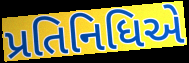
પ્રતિનિધિએ